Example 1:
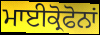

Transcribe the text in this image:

ਮਾਈਕ੍ਰੋਫੋਨਾਂ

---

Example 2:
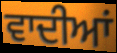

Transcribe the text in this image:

ਵਾਦੀਆਂ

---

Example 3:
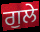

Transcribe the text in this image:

ਗੁਲੇ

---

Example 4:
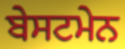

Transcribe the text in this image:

ਬੇਸਟਮੇਨ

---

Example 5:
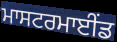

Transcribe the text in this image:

ਮਾਸਟਰਮਾਈੰਡ